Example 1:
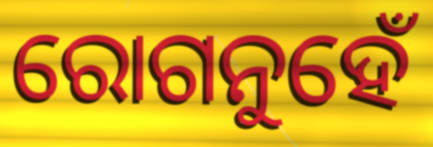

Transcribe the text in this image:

ରୋଗନୁହେଁ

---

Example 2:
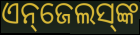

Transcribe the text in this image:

ଏନ୍‌ଜେଲସ୍‌ଙ୍କ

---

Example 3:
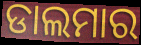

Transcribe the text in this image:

ଡାଲମାର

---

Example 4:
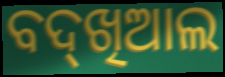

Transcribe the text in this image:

ବଦ୍‌ଖିଆଲ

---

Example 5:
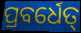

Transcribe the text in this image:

ପ୍ରବର୍ଧେତ୍